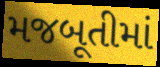
મજબૂતીમાં